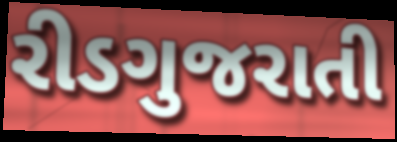
રીડગુજરાતી